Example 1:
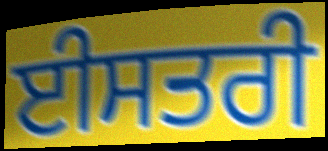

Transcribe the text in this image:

ਈਸਤਰੀ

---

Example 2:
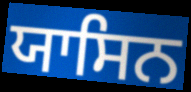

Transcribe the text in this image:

ਯਾਸਿਨ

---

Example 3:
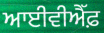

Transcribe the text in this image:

ਆਈਵੀਐੱਫ਼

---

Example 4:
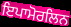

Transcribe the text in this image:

ਇਪਾਮੋਰਲਿਨ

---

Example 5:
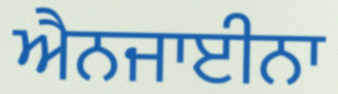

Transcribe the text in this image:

ਐਨਜਾਈਨਾ